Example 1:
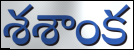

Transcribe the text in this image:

శశాంక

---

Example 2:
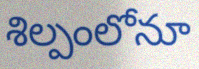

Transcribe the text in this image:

శిల్పంలోనూ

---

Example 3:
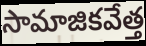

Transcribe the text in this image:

సామాజికవేత్త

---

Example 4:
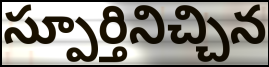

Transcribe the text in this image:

స్పూర్తినిచ్చిన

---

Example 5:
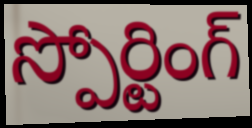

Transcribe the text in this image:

స్పోర్టింగ్